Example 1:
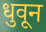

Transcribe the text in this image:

धुवून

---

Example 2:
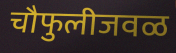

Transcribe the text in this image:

चौफुलीजवळ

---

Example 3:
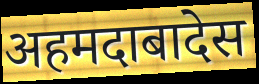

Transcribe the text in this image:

अहमदाबादेस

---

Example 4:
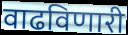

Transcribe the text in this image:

वाढविणारी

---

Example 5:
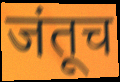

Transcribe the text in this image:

जंतूच